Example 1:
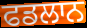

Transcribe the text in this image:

ਫਡਲਾਨ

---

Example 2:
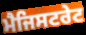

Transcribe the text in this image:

ਮੈਜਿਸਟਰੇਟ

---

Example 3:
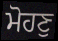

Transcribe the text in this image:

ਮੋਹਣੁ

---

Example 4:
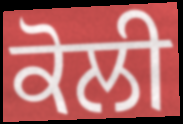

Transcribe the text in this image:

ਕੋਲੀ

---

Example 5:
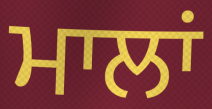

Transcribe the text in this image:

ਮਾਲਾਂ